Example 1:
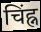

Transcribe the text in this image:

चिंह्न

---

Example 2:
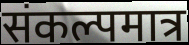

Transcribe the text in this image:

संकल्पमात्र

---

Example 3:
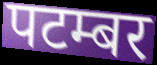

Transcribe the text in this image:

पटम्बर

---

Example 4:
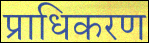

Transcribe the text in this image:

प्राधिकरण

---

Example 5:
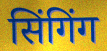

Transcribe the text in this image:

सिंगिंग